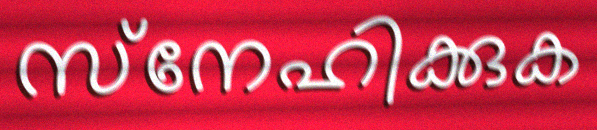
സ്‌നേഹിക്കുക